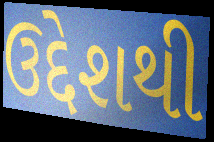
ઉદ્દેશથી